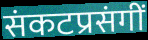
संकटप्रसंगीं